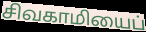
சிவகாமியைப்